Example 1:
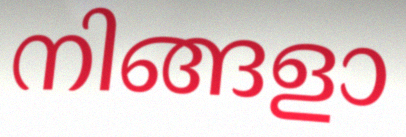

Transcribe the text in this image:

നിങ്ങളാ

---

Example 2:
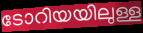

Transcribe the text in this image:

ടോറിയയിലുള്ള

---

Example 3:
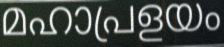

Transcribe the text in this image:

മഹാപ്രളയം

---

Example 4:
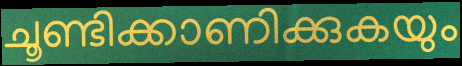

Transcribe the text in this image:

ചൂണ്ടിക്കാണിക്കുകയും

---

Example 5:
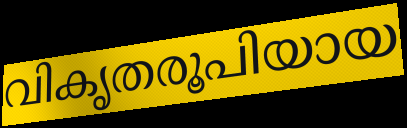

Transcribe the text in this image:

വികൃതരൂപിയായ